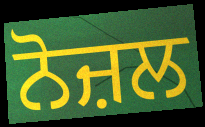
ਨੋਜ਼ਲ